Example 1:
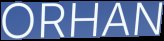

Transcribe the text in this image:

ORHAN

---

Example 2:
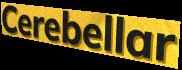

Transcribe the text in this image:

Cerebellar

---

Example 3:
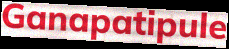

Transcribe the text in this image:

Ganapatipule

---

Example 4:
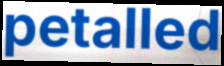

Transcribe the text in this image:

petalled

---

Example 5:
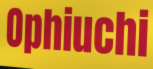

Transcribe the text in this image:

Ophiuchi